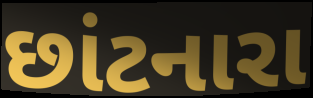
છાંટનારા